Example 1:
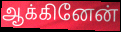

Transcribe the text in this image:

ஆக்கினேன்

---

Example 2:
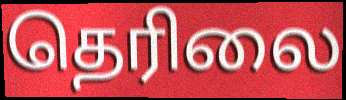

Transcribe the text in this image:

தெரிலை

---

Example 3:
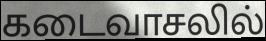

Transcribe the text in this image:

கடைவாசலில்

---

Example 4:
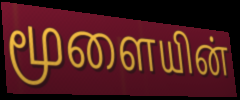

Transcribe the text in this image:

மூளையின்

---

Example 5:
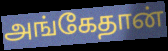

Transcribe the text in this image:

அங்கேதான்